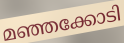
മഞ്ഞക്കോടി